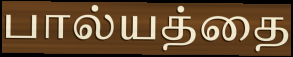
பால்யத்தை